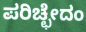
ಪರಿಚ್ಛೇದಂ